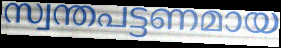
സ്വന്തപട്ടണമായ